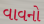
વાવનો